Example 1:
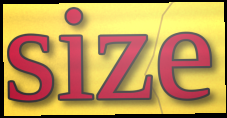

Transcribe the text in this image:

size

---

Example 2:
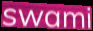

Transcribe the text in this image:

swami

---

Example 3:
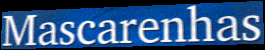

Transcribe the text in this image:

Mascarenhas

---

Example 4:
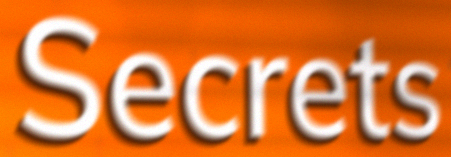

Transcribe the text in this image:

Secrets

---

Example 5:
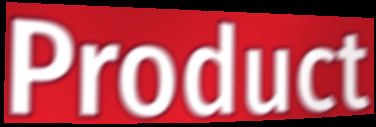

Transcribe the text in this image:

Product